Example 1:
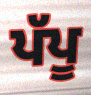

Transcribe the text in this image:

ਪੱਪੂ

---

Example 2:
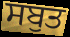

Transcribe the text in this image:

ਸਬੁਤ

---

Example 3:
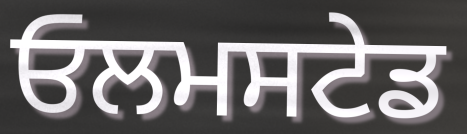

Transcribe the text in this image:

ਓਲਮਸਟੇਡ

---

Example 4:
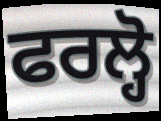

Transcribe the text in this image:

ਫਰਲ੍ਹੋ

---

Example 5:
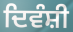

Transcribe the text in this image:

ਦਿਵੰਸ਼ੀ